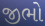
જીભો